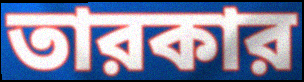
তারকার